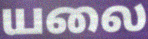
யலை